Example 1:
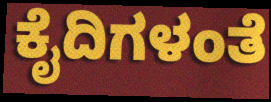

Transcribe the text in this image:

ಕೈದಿಗಳಂತೆ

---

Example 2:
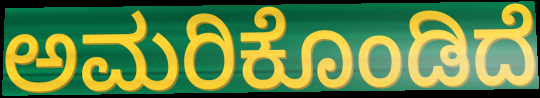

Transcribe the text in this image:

ಅಮರಿಕೊಂಡಿದೆ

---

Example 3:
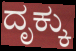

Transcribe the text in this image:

ದೃಕ್ಕು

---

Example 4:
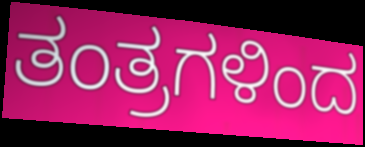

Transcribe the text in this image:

ತಂತ್ರಗಳಿಂದ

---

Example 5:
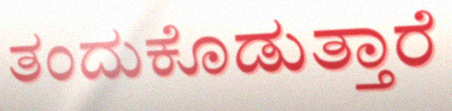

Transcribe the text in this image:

ತಂದುಕೊಡುತ್ತಾರೆ